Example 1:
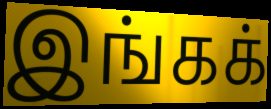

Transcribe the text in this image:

இங்கக்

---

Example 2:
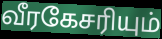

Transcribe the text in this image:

வீரகேசரியும்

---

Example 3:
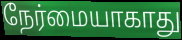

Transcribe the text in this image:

நேர்மையாகாது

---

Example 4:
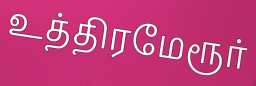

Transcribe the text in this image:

உத்திரமேரூர்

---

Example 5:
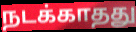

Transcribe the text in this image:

நடக்காதது